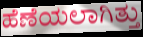
ಹೆಣೆಯಲಾಗಿತ್ತು